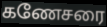
கணேசரை